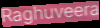
Raghuveera